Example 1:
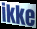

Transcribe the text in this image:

ikke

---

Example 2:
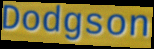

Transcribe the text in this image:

Dodgson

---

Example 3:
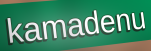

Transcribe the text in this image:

kamadenu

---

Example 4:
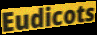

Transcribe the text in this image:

Eudicots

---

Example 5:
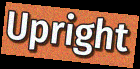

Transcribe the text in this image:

Upright